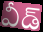
వీడ్